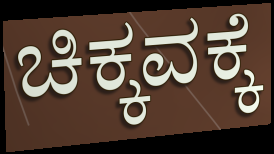
ಚಿಕ್ಕವಕ್ಕೆ